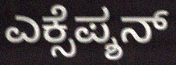
ಎಕ್ಸೆಪ್ಶನ್